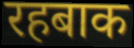
रहबाक